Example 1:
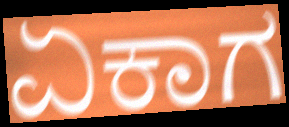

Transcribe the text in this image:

ಏಕಾಗ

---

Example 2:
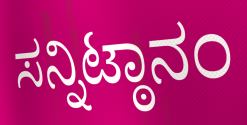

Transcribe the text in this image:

ಸನ್ನಿಟ್ಠಾನಂ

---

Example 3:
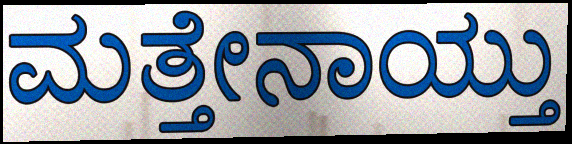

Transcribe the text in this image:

ಮತ್ತೇನಾಯ್ತು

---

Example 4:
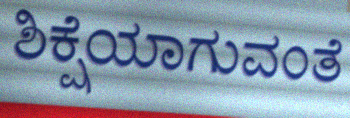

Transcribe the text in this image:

ಶಿಕ್ಷೆಯಾಗುವಂತೆ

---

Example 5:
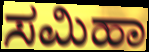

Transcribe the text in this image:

ಸಮಿಹಾ